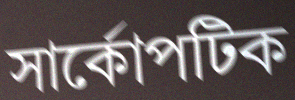
সার্কোপটিক